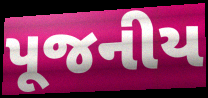
પૂજનીય